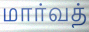
மார்வத்